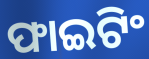
ଫାଇଟିଂ